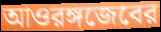
আওরঙ্গজেবের